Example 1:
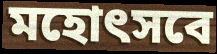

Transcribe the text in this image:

মহোৎসবে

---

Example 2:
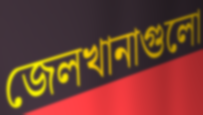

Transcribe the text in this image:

জেলখানাগুলো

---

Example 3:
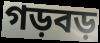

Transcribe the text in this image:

গড়বড়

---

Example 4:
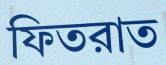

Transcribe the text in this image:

ফিতরাত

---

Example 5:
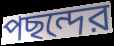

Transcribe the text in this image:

পছন্দের